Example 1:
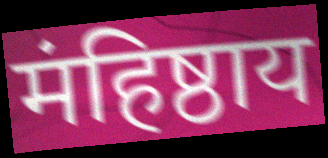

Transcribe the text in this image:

मंहिष्ठाय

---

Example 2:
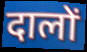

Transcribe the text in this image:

दालों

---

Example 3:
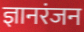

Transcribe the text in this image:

ज्ञानरंजन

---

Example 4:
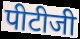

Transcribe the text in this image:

पीटीजी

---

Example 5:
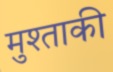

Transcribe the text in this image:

मुश्ताकी